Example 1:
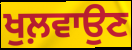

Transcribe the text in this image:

ਖੁਲ਼ਵਾਉਣ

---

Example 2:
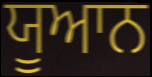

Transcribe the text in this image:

ਯੂਆਨ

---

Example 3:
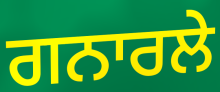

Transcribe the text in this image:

ਗਨਾਰਲੇ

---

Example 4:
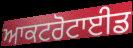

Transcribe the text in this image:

ਆਕਟਰੋਟਾਈਡ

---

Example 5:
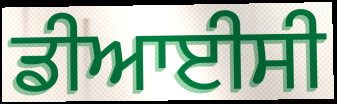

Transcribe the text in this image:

ਡੀਆਈਸੀ